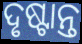
ଦୃଷ୍ଟାନ୍ତ